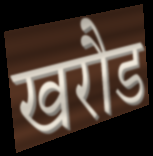
खरौड